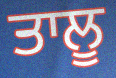
ਤਾਲੂ